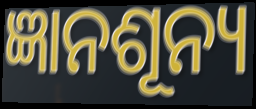
ଜ୍ଞାନଶୂନ୍ୟ